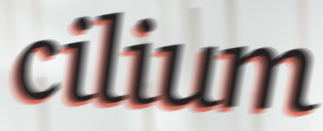
cilium